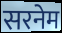
सरनेम